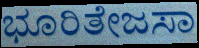
ಭೂರಿತೇಜಸಾ